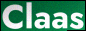
Claas